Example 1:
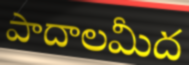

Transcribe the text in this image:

పాదాలమీద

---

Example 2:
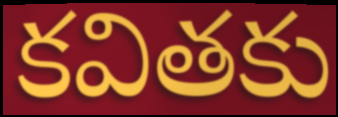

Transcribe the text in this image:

కవితకు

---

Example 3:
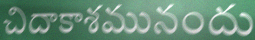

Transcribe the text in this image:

చిదాకాశమునందు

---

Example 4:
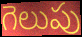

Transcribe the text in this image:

గెలుపు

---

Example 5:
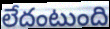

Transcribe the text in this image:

లేదంటుంది